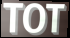
TOT